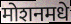
मोशनमधे